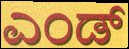
ಎಂಡ್